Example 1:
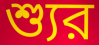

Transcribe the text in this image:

শ্যুর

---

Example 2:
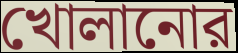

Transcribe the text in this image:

খোলানোর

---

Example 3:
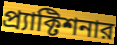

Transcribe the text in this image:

প্র্যাক্টিশনার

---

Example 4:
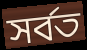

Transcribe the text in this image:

সর্বত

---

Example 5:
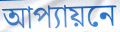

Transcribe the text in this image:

আপ্যায়নে